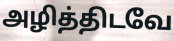
அழித்திடவே